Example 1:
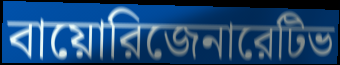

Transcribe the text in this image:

বায়োরিজেনারেটিভ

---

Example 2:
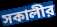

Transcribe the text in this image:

সকালীর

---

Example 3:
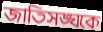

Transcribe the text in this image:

জাতিসঙ্ঘকে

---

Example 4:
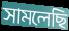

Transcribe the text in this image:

সামলেছি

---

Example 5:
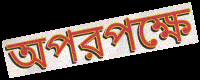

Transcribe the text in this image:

অপরপক্ষে